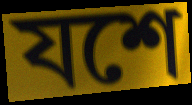
যশে